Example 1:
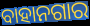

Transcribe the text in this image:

ବାହାନଗାର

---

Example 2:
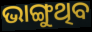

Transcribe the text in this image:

ଭାଙ୍ଗୁଥିବ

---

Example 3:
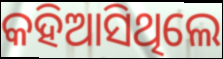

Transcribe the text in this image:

କହିଆସିଥିଲେ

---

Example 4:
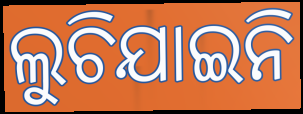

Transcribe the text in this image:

ଲୁଚିଯାଇନି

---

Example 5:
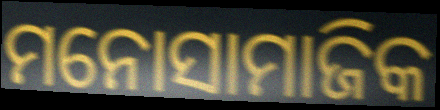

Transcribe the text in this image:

ମନୋସାମାଜିକ